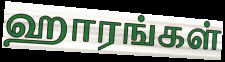
ஹாரங்கள்